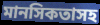
মানসিকতাসহ